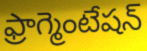
ఫ్రాగ్మెంటేషన్